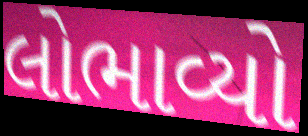
લોભાવ્યો